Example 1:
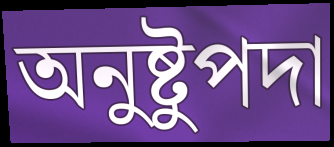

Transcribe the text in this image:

অনুষ্টুপদা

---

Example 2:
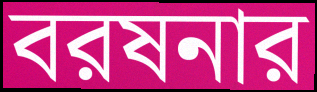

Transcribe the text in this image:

বরষনার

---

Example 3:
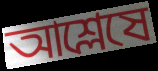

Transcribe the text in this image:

আশ্লেষে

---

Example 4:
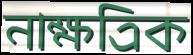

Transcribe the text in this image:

নাক্ষত্রিক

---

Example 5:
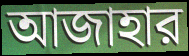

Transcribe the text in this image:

আজাহার